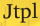
Jtpl